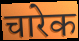
चारेक